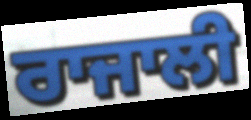
ਰਾਜਾਲੀ